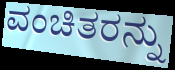
ವಂಚಿತರನ್ನು